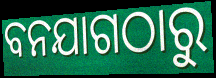
ବନଯାଗଠାରୁ